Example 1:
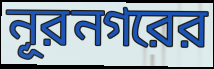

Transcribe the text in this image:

নূরনগরের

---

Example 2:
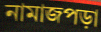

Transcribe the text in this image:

নামাজপড়া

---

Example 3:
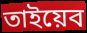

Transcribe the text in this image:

তাইয়েব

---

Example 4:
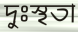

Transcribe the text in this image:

দুঃস্থতা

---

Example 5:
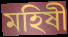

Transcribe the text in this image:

মহিষী